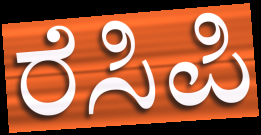
ರೆಸಿಪಿ